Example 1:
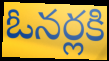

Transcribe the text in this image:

ఓనర్లకి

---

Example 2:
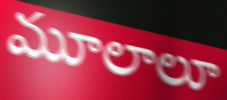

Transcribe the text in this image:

మూలాలూ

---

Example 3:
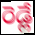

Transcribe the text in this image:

రెడ్లే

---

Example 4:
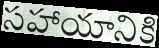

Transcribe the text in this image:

సహాయానికి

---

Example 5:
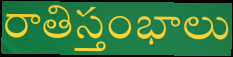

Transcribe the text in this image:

రాతిస్తంభాలు